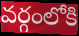
వర్గంలోకి